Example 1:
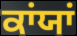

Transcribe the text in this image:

ਕਾਂਯਾਂ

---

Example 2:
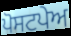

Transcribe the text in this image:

ਪੋਸਟਪੇਅ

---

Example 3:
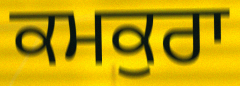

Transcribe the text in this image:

ਕਮਕੁਰਾ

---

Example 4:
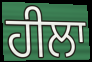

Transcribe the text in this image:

ਹੀਲਾ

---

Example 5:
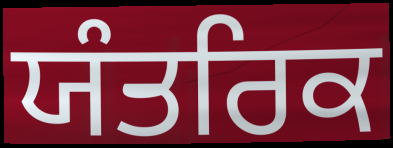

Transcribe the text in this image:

ਯੰਤਰਿਕ